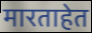
मारताहेत